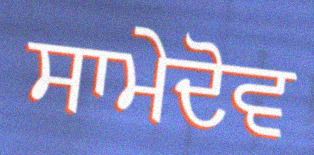
ਸਾਮੇਦੋਵ